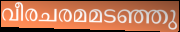
വീരചരമമടഞ്ഞു